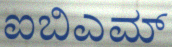
ಐಬಿಎಮ್